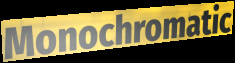
Monochromatic